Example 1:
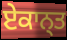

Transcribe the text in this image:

ਏਕਾਨ੍ਤ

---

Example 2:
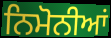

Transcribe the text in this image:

ਨਿਮੋਨੀਆਂ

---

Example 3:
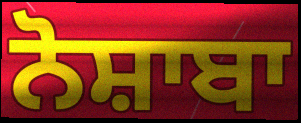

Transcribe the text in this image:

ਨੋਸ਼ਾਬਾ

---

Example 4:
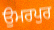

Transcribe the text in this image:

ਉਮਰਪੁਰ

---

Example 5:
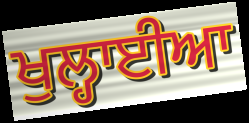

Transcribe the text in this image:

ਖੁਲ੍ਹਾਈਆ